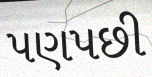
પણપછી